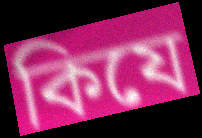
কিযে